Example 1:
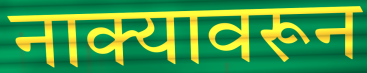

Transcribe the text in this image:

नाक्यावरून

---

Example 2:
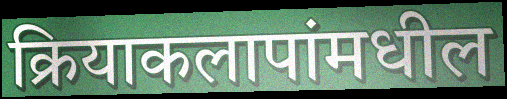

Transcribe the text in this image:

क्रियाकलापांमधील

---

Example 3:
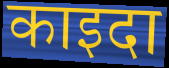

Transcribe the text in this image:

काइदा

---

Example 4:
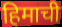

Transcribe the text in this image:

हिमाची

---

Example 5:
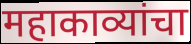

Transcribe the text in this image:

महाकाव्यांचा